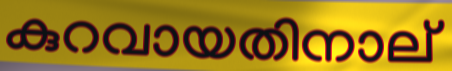
കുറവായതിനാല്